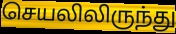
செயலிலிருந்து